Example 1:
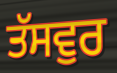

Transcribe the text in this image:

ਤੱਸਵੁਰ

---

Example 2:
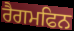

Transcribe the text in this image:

ਰੈਗਮਫਿਨ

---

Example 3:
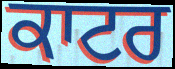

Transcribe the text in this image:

ਕਾਟਰ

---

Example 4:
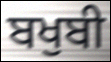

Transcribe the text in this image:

ਬਖੁਬੀ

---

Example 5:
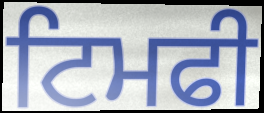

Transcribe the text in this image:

ਟਿਮਫੀ